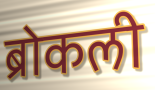
ब्रोकली